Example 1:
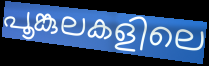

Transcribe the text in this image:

പൂങ്കുലകളിലെ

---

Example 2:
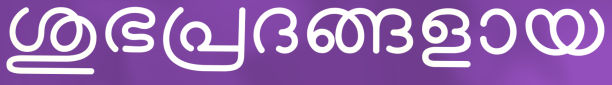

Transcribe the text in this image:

ശുഭപ്രദങ്ങളായ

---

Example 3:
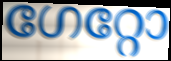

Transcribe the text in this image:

ഗേറ്റോ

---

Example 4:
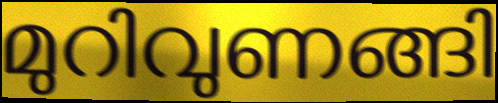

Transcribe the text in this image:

മുറിവുണങ്ങി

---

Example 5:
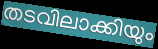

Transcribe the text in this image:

തടവിലാക്കിയും